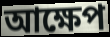
আক্ষেপ